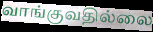
வாங்குவதில்லை